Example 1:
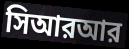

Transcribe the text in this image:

সিআরআর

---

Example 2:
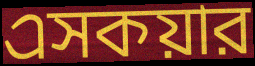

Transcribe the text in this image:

এসকয়ার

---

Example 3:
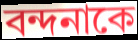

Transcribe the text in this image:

বন্দনাকে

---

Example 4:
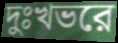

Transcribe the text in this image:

দুঃখভরে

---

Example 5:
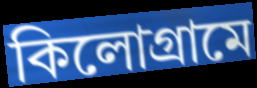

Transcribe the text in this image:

কিলোগ্রামে